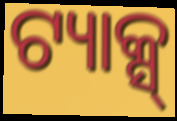
ଟ୍ୟାକ୍ସ୍